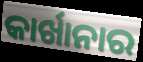
କାର୍ଖାନାର